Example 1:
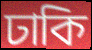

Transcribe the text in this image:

ঢাকি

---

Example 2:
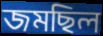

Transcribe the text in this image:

জমছিল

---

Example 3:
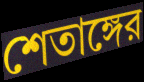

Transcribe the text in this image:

শেতাঙ্গের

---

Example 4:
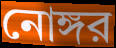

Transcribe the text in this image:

নোঙ্গর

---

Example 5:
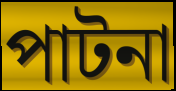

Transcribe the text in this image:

পাটনা